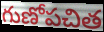
గుణోపచిత